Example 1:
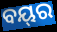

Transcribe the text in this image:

ବୟ୍‌ର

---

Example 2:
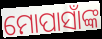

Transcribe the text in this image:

ମୋପାସାଁଙ୍କ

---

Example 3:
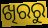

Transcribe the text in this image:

ଖିରରୁ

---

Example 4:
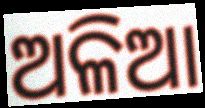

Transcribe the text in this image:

ଅଳିଆ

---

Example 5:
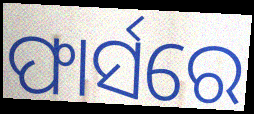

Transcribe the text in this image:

ଫାର୍ସରେ